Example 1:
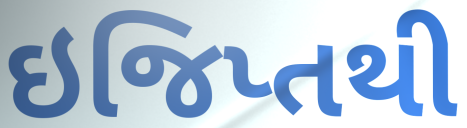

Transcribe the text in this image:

ઇજિપ્તથી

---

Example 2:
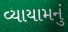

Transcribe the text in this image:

વ્યાયામનું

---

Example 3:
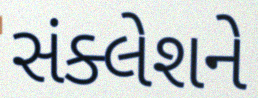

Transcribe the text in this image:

સંક્લેશને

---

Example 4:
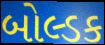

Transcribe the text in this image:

બોલ્ડક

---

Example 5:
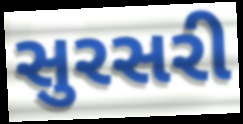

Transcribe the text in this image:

સુરસરી